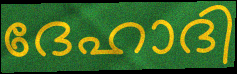
ദേഹാദി